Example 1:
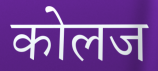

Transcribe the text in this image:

कोलज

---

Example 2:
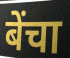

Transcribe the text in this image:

बेंचा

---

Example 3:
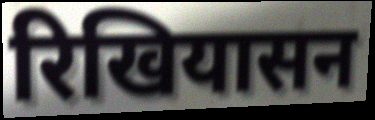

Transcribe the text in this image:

रिखियासन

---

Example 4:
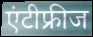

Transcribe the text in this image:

एंटीफ्रीज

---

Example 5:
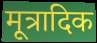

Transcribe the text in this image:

मूत्रादिक